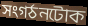
সংগঠনটোক